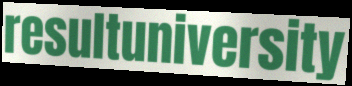
resultuniversity